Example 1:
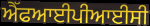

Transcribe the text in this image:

ਐੱਫਆਈਪੀਆਈਸੀ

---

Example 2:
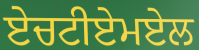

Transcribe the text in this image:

ਏਚਟੀਏਮਏਲ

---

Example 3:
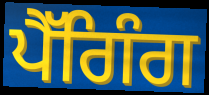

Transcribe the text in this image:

ਪੈੱਗਿੰਗ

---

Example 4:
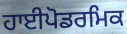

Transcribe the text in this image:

ਹਾਈਪੋਡਰਮਿਕ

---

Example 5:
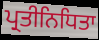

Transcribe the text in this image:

ਪ੍ਰਤੀਨਿਧਿਤਾ